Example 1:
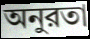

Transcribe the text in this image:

অনুরতা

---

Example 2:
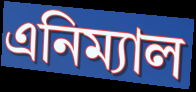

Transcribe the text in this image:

এনিম্যাল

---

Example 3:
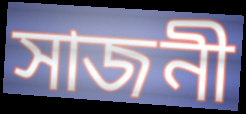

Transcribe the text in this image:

সাজনী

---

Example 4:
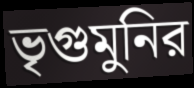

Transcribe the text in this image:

ভৃগুমুনির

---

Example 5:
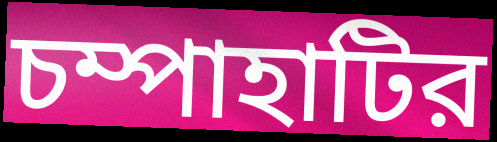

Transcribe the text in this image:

চম্পাহাটির